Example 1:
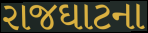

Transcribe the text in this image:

રાજઘાટના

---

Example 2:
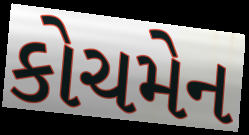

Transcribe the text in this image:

કોચમેન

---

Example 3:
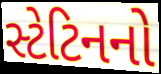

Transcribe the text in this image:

સ્ટેટિનનો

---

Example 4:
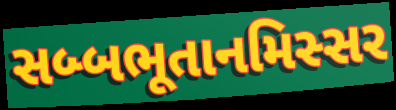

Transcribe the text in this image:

સબ્બભૂતાનમિસ્સર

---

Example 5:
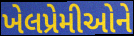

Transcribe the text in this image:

ખેલપ્રેમીઓને